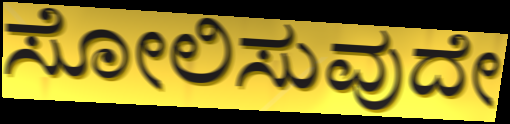
ಸೋಲಿಸುವುದೇ